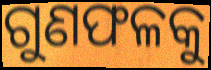
ଗୁଣଫଳକୁ